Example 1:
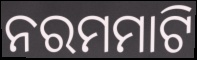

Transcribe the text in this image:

ନରମମାଟି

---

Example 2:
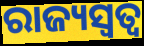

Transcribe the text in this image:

ରାଜ୍ୟସ୍ଵତ୍ଵ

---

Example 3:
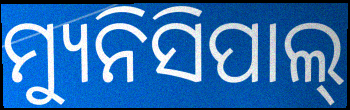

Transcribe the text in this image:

ମ୍ୟୁନିସିପାଲ୍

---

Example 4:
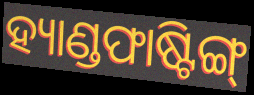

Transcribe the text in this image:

ହ୍ୟାଣ୍ଡଫାଷ୍ଟିଙ୍ଗ୍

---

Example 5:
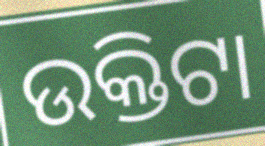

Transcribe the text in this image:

ଉକ୍ତିଟା